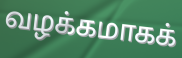
வழக்கமாகக்